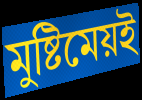
মুষ্টিমেয়ই